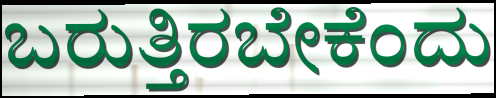
ಬರುತ್ತಿರಬೇಕೆಂದು